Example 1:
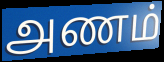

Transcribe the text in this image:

அணம்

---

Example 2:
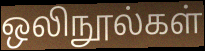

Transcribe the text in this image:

ஒலிநூல்கள்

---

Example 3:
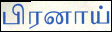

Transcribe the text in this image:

பிரனாய்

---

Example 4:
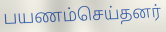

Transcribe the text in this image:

பயணம்செய்தனர்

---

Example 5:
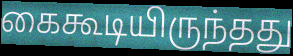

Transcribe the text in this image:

கைகூடியிருந்தது